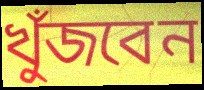
খুঁজবেন